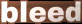
bleed